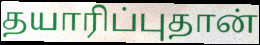
தயாரிப்புதான்